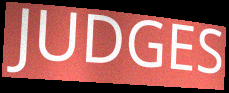
JUDGES